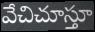
వేచిచూస్తూ